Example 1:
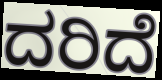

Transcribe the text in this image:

ದರಿದೆ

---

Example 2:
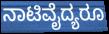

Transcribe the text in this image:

ನಾಟಿವೈದ್ಯರೂ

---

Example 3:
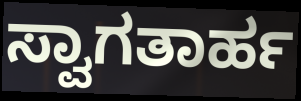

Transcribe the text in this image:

ಸ್ವಾಗತಾರ್ಹ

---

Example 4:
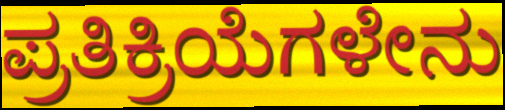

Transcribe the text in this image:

ಪ್ರತಿಕ್ರಿಯೆಗಳೇನು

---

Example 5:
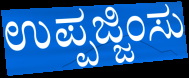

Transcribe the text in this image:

ಉಪ್ಪಜ್ಜಿಂಸು